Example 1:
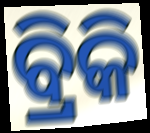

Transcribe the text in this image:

ବ୍ରିକି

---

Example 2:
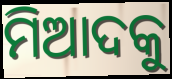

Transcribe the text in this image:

ମିଆଦକୁ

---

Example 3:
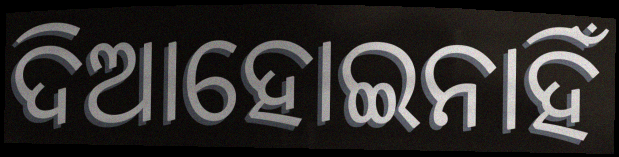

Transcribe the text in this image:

ଦିଆହୋଇନାହିଁ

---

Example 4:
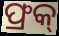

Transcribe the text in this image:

ଫ୍ରକ୍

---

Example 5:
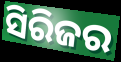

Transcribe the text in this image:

ସିରିଜର